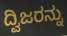
ದ್ವಿಜರನ್ನು